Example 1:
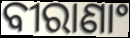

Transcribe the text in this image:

ବୀରାଣାଂ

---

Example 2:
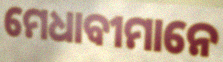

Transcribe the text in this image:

ମେଧାବୀମାନେ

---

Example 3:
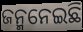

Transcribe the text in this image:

ଜନ୍ମନେଇଛି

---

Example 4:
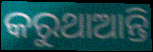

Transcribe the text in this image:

କରୁଥାଆନ୍ତି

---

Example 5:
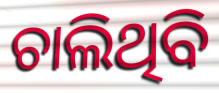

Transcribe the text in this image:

ଚାଲିଥିବି